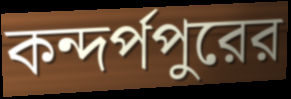
কন্দর্পপুরের